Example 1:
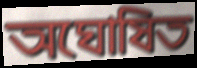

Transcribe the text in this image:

অঘোষিত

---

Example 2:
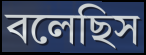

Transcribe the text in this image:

বলেছিস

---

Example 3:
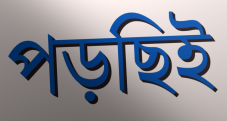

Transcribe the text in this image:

পড়ছিই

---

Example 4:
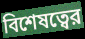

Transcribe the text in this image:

বিশেষত্বের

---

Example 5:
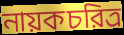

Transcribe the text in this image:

নায়কচরিত্র